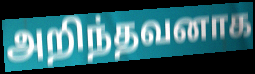
அறிந்தவனாக